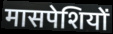
मासपेशियों